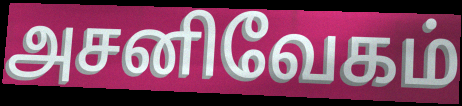
அசனிவேகம்